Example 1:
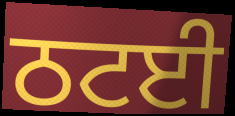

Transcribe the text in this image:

ਠਟਈ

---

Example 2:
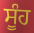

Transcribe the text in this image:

ਸੂੰਹ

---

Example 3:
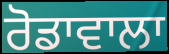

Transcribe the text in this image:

ਰੋਡਾਵਾਲਾ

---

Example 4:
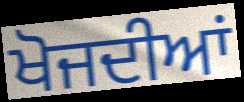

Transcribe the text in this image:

ਖੋਜਦੀਆਂ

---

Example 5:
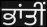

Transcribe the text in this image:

ਭਾਂਤੀਂ